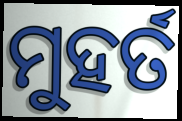
ମୁହର୍ତ